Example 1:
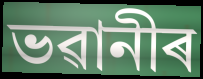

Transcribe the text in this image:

ভৱানীৰ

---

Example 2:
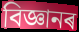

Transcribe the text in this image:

বিজ্ঞানৰ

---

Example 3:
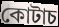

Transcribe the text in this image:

কোটাচ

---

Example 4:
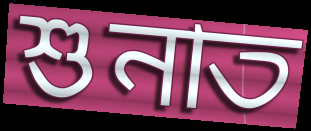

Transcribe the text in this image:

শুনাত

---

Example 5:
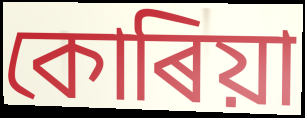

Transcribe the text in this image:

কোৰিয়া